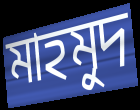
মাহমুদ